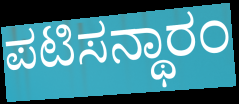
ಪಟಿಸನ್ಥಾರಂ